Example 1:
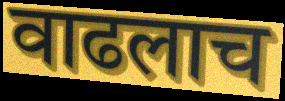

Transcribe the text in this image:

वाढलाच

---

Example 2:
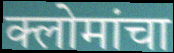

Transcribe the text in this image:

क्लोमांचा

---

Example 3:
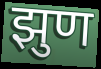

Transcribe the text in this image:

झुण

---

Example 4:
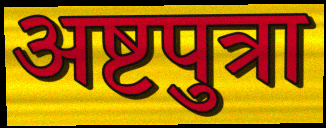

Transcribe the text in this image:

अष्टपुत्रा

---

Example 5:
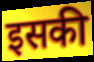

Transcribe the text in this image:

इसकी